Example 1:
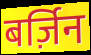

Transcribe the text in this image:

बर्ज़िन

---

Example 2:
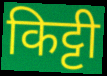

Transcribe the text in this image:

किट्टी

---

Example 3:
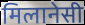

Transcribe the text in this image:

मिलानेसी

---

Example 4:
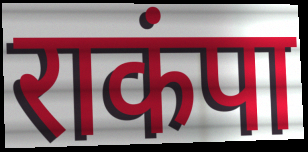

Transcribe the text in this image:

राकंपा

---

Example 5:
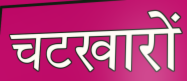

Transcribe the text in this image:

चटखारों